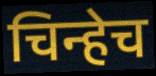
चिन्हेच